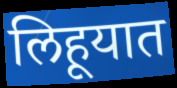
लिहूयात